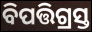
ବିପତ୍ତିଗ୍ରସ୍ତ